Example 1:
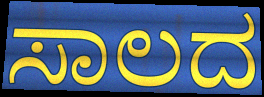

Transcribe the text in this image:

ಸಾಲದ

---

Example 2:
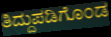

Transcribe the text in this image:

ತಿದ್ದುಪಡಿಗೊಂಡ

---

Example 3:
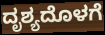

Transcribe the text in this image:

ದೃಶ್ಯದೊಳಗೆ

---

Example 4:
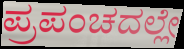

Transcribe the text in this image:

ಪ್ರಪಂಚದಲ್ಲೇ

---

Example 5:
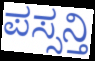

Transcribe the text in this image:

ಪಸ್ಸನ್ತಿ